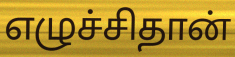
எழுச்சிதான்